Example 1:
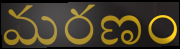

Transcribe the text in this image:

మరణం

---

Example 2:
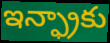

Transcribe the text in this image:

ఇన్ఫ్రాకు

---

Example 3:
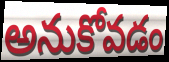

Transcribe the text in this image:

అనుకోవడం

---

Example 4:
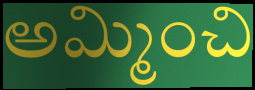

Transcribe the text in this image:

అమ్మించి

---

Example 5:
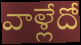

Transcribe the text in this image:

వాళ్లేదో